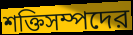
শক্তিসম্পদের